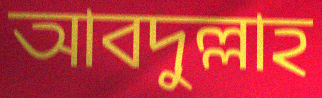
আবদুল্লাহ